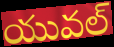
యువల్